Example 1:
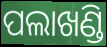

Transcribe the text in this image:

ପଲାଖଣ୍ଡି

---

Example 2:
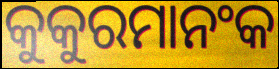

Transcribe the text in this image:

କୁକୁରମାନଂକ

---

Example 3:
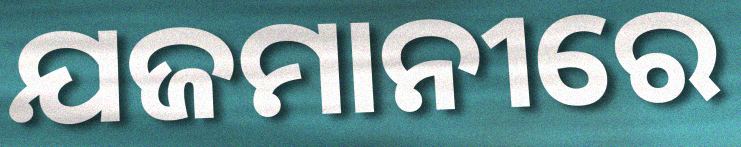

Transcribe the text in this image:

ଯଜମାନୀରେ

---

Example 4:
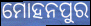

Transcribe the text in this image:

ମୋହନପୁର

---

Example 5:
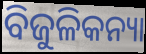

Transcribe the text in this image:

ବିଜୁଳିକନ୍ୟା